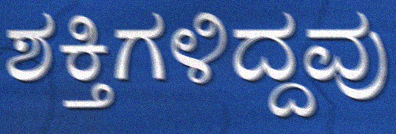
ಶಕ್ತಿಗಳಿದ್ದವು